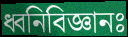
ধ্বনিবিজ্ঞানঃ